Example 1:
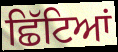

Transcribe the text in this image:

ਛਿੱਟਿਆਂ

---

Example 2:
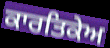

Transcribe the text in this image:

ਕਾਰਤਿਕੇਅ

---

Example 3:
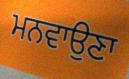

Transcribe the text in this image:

ਮਨਵਾਉਣਾ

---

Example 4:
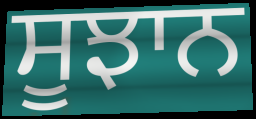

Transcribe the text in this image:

ਸੂਝਾਨ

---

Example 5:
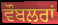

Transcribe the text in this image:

ਵੌਬਲਰਾਂ